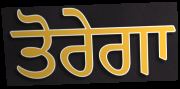
ਤੋਰੇਗਾ